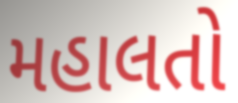
મહાલતો